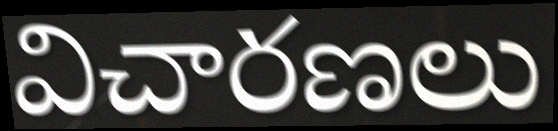
విచారణలు